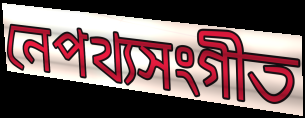
নেপথ্যসংগীত